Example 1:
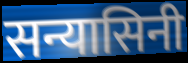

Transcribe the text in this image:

सन्यासिनी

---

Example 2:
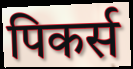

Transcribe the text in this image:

पिकर्स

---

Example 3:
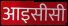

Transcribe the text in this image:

आइसीसी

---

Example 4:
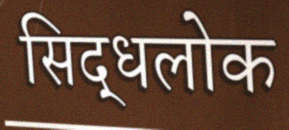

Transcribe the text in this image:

सिद्धलोक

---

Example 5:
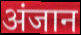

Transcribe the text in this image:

अंजान